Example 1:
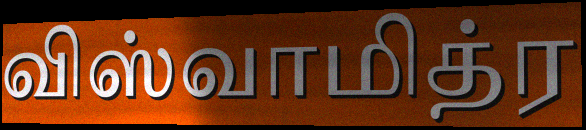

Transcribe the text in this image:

விஸ்வாமித்ர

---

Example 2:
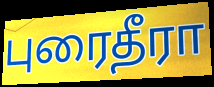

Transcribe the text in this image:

புரைதீரா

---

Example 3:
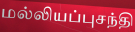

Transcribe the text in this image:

மல்லியப்புசந்தி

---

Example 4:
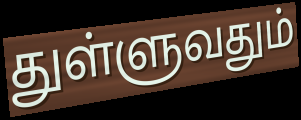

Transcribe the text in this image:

துள்ளுவதும்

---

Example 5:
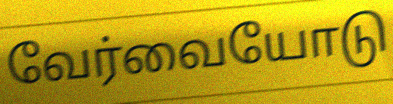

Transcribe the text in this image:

வேர்வையோடு